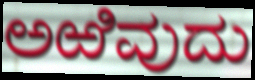
ಅಱಿವುದು